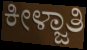
ಕೀಳ್ಜಾತಿ